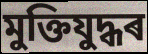
মুক্তিযুদ্ধৰ